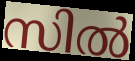
സിൽ